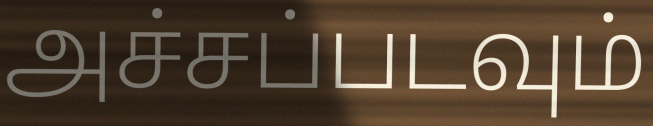
அச்சப்படவும்